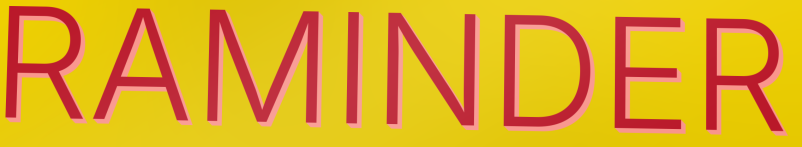
RAMINDER